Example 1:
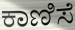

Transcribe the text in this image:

ಕಾಣಿಸೆ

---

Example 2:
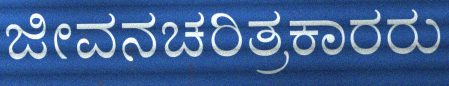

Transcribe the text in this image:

ಜೀವನಚರಿತ್ರಕಾರರು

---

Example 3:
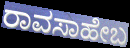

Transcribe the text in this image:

ರಾವಸಾಹೇಬ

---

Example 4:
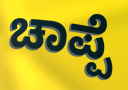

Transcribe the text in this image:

ಚಾಪ್ಪೆ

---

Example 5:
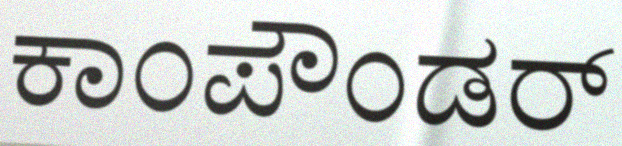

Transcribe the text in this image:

ಕಾಂಪೌಂಡರ್